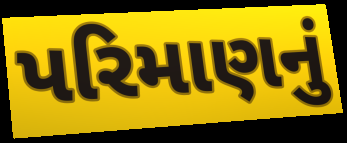
પરિમાણનું